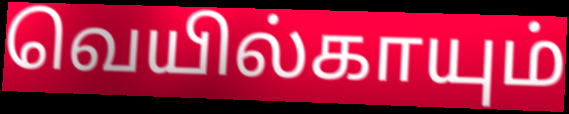
வெயில்காயும்